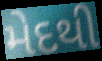
મેદથી